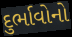
દુર્ભાવોનો